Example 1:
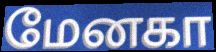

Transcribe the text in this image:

மேனகா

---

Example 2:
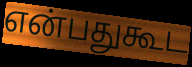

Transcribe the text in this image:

என்பதுகூட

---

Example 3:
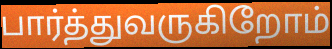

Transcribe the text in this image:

பார்த்துவருகிறோம்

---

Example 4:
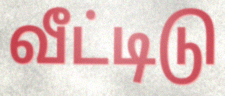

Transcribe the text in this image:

வீட்டிடு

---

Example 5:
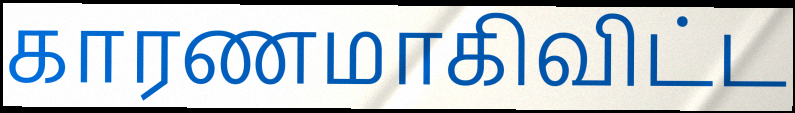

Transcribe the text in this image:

காரணமாகிவிட்ட